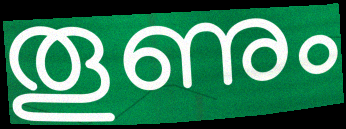
തൂണും